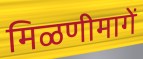
मिळणीमागें